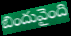
బిందువైంది